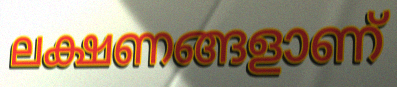
ലക്ഷണങ്ങളാണ്